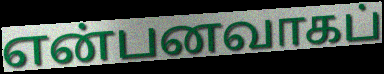
என்பனவாகப்